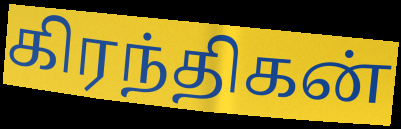
கிரந்திகன்